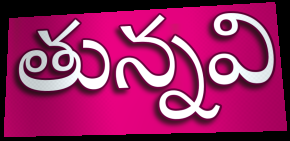
తున్నవి